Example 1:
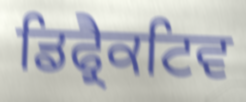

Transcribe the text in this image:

ਡਿਫ੍ਰੈਕਟਿਵ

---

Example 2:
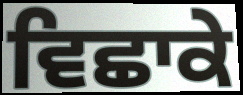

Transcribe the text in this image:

ਵਿਛਾਕੇ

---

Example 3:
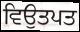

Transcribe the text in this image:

ਵਿਉਤਪਤ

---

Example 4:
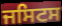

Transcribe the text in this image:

ਜਸਿਟਸ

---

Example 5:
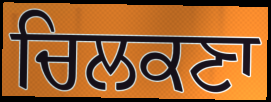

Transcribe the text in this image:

ਚਿਲਕਣਾ